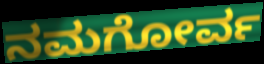
ನಮಗೋರ್ವ